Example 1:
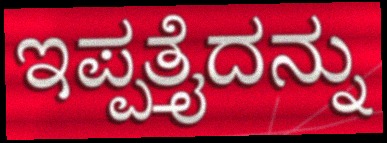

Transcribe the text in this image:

ಇಪ್ಪತ್ತೈದನ್ನು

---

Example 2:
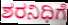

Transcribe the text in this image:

ಶರನಿಧಿಗೆ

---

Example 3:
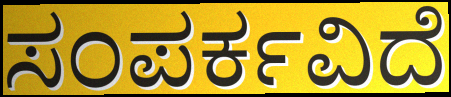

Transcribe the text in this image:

ಸಂಪರ್ಕವಿದೆ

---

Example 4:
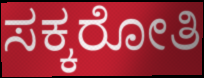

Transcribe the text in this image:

ಸಕ್ಕರೋತಿ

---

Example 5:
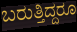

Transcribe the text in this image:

ಬರುತ್ತಿದ್ದರೂ